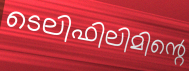
ടെലിഫിലിമിന്റെ